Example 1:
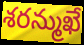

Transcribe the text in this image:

శరన్ముఖే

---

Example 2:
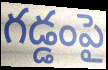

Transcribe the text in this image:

గడ్డంపై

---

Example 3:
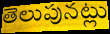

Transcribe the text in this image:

తెలుపునట్లు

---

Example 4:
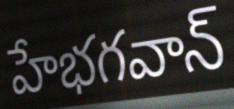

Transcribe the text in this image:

హేభగవాన్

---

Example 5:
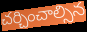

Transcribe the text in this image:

చర్చించాల్సిన